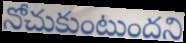
నోచుకుంటుందని